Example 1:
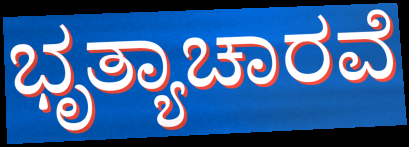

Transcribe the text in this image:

ಭೃತ್ಯಾಚಾರವೆ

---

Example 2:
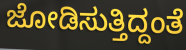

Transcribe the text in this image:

ಜೋಡಿಸುತ್ತಿದ್ದಂತೆ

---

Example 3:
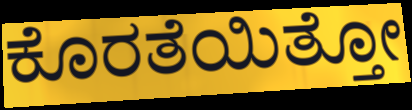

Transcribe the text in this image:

ಕೊರತೆಯಿತ್ತೋ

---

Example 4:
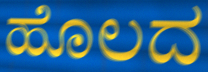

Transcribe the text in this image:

ಹೊಲದ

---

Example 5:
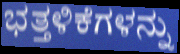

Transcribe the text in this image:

ಭತ್ತಳಿಕೆಗಳನ್ನು